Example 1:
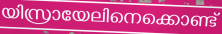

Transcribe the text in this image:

യിസ്രായേലിനെക്കൊണ്ട്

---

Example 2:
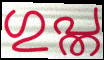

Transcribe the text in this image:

ഗുപ്ത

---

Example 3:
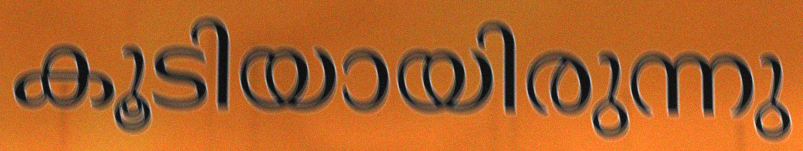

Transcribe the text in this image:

കൂടിയായിരുന്നു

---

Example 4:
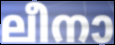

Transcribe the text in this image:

ലീനാ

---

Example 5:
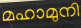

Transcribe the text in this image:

മഹാമുനി